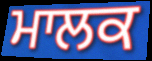
ਮਾਲਕ